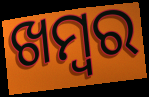
ଖମ୍ୱର